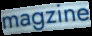
magzine